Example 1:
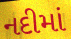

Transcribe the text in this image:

નદીમાં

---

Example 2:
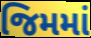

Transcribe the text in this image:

જિમમાં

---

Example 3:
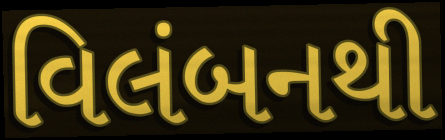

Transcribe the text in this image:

વિલંબનથી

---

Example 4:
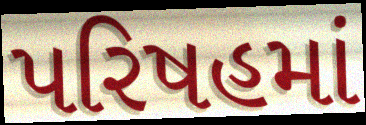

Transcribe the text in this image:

પરિષહમાં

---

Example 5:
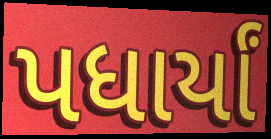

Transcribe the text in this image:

પધાર્યાં